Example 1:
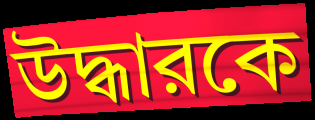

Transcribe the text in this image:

উদ্ধারকে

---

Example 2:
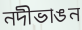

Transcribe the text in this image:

নদীভাঙন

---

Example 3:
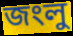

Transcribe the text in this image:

জংলু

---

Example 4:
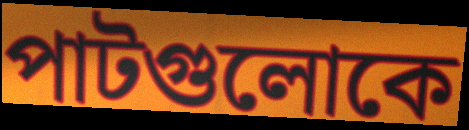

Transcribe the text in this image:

পাটগুলোকে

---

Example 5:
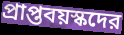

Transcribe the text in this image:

প্রাপ্তবয়স্কদের